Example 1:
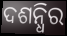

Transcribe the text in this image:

ଦଶନ୍ଧିର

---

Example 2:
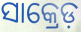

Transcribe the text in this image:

ସାକ୍ରେଡ଼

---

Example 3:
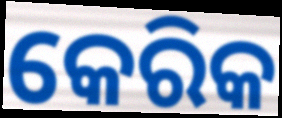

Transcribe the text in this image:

କେରିକ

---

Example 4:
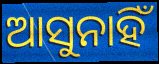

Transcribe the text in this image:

ଆସୁନାହିଁ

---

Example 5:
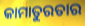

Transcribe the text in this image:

କାମାତୁରତାର